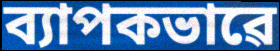
ব্যাপকভাৱে